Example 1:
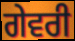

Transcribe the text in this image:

ਗੇਵਰੀ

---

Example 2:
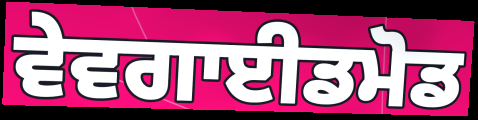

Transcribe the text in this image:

ਵੇਵਗਾਈਡਮੋਡ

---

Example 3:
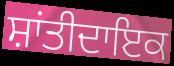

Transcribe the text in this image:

ਸ਼ਾਂਤੀਦਾਇਕ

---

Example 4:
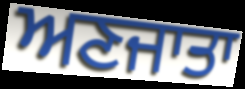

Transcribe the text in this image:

ਅਣਜਾਤਾ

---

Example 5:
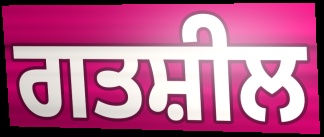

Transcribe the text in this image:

ਗਤਸ਼ੀਲ